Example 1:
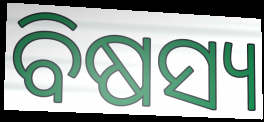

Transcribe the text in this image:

ବିଷସ୍ୟ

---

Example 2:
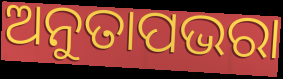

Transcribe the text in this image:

ଅନୁତାପଭରା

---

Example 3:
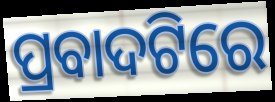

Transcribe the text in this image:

ପ୍ରବାଦଟିରେ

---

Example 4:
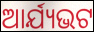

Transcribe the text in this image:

ଆର୍ଯ୍ୟଭଟ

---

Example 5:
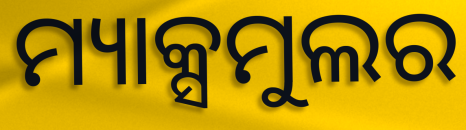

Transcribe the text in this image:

ମ୍ୟାକ୍ସମୁଲର